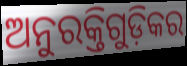
ଅନୁରକ୍ତିଗୁଡ଼ିକର